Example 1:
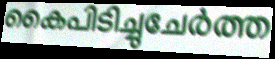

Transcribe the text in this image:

കൈപിടിച്ചുചേർത്ത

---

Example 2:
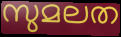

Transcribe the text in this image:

സുമലത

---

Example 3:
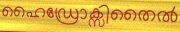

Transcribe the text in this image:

ഹൈഡ്രോക്സിതൈൽ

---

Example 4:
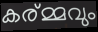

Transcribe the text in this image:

കര്മ്മവും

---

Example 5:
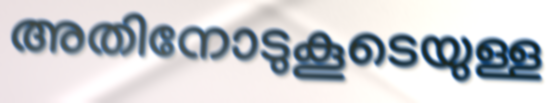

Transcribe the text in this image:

അതിനോടുകൂടെയുള്ള